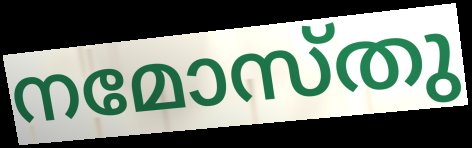
നമോസ്തു